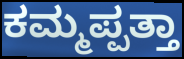
ಕಮ್ಮಪ್ಪತ್ತಾ